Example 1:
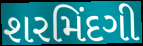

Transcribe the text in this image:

શરમિંદગી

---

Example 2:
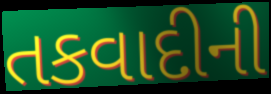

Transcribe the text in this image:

તકવાદીની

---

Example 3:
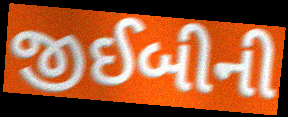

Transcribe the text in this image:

જીઈબીની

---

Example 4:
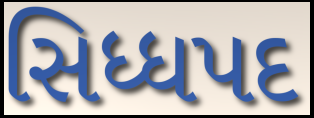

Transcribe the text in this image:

સિધ્ધપદ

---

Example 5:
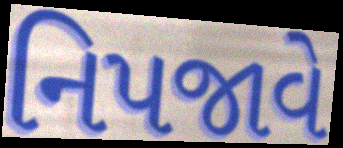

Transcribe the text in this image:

નિપજાવે